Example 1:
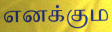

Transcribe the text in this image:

எனக்கும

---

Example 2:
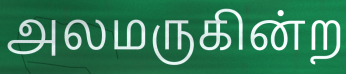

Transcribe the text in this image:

அலமருகின்ற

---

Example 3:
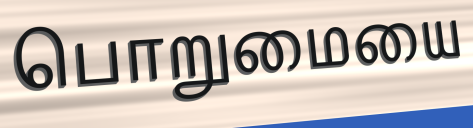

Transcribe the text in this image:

பொறுமையை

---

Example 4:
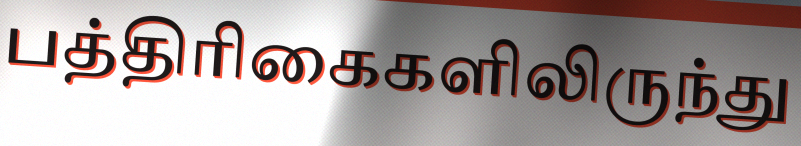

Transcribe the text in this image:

பத்திரிகைகளிலிருந்து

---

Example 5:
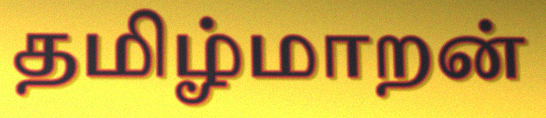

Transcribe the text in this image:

தமிழ்மாறன்